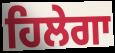
ਹਿਲੇਗਾ